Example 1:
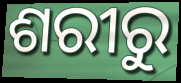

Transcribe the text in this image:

ଶରୀରୁ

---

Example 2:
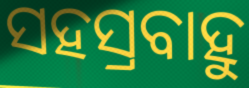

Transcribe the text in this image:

ସହସ୍ରବାହୁ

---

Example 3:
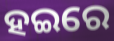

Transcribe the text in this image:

ହଇରେ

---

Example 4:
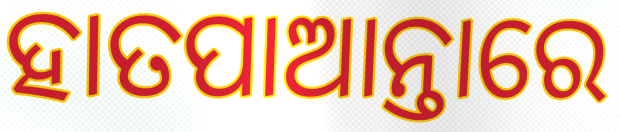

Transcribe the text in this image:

ହାତପାଆନ୍ତାରେ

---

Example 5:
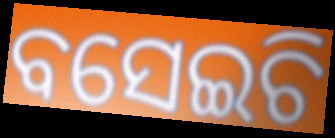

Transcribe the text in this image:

ବସେଇଚି